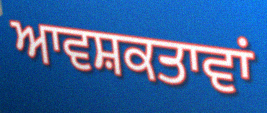
ਆਵਸ਼ਕਤਾਵਾਂ